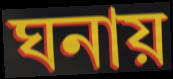
ঘনায়